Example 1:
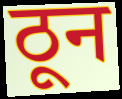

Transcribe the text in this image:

ठून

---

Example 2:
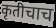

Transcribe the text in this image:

कृतीचाच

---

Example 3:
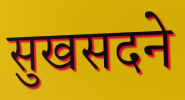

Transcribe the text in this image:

सुखसदने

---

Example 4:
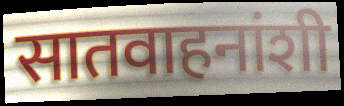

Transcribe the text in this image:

सातवाहनांशी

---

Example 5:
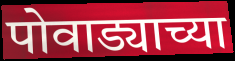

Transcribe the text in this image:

पोवाड्याच्या